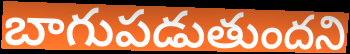
బాగుపడుతుందని